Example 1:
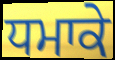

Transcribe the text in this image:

ਧਮਾਕੇ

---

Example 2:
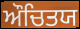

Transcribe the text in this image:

ਔਚਿਤਯ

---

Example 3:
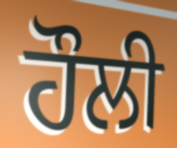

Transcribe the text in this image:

ਹੌਲੀ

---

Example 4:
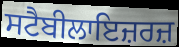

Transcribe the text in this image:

ਸਟੈਬੀਲਾਇਜ਼ਰਜ਼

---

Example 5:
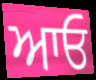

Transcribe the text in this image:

ਆਓ